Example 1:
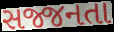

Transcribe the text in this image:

સજ્જનતા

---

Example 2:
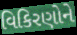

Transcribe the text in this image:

વિકિરણોને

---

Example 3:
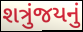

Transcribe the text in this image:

શત્રુંજયનું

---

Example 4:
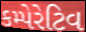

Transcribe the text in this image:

કમ્પેરેટિવ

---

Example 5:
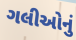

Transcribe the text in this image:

ગલીઓનું